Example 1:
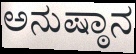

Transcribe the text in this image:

ಅನುಷ್ಠಾನ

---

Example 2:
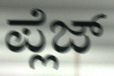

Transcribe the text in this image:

ಪ್ಲೆಜ್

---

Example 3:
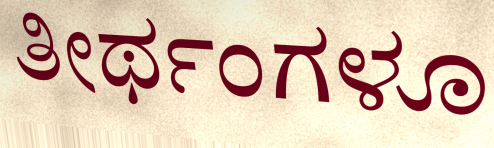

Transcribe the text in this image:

ತೀರ್ಥಂಗಳೂ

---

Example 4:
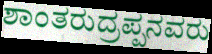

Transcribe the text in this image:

ಶಾಂತರುದ್ರಪ್ಪನವರು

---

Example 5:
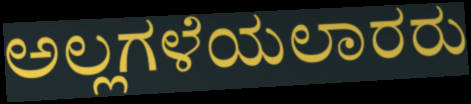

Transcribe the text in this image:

ಅಲ್ಲಗಳೆಯಲಾರರು